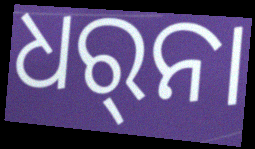
ଧର୍‌ନା